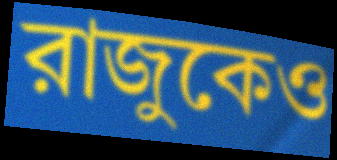
রাজুকেও